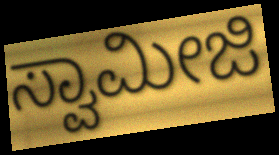
ಸ್ವಾಮೀಜಿ